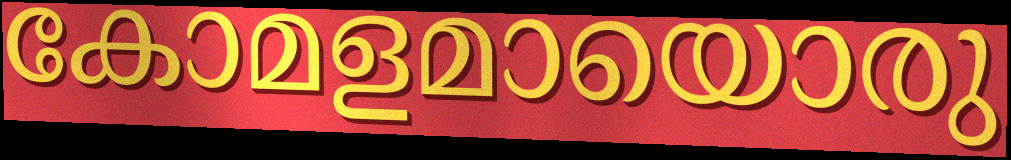
കോമളമായൊരു